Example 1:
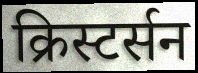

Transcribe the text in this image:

क्रिस्टर्सन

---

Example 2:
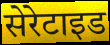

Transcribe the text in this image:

सेरेटाइड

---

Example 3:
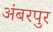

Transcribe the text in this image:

अंबरपुर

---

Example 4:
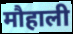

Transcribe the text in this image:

मौहाली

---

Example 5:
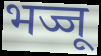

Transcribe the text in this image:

भज्जू